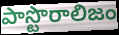
పాస్టొరాలిజం